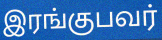
இரங்குபவர்